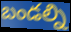
బండల్ని